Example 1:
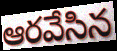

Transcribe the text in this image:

ఆరవేసిన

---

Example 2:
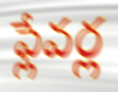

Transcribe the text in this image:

ఫ్లేవర్ల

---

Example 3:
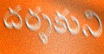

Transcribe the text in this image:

దర్శకుని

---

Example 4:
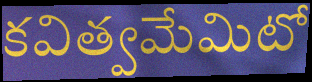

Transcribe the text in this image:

కవిత్వమేమిటో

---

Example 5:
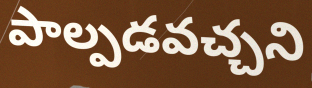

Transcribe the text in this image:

పాల్పడవచ్చని